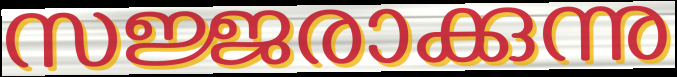
സജ്ജരാക്കുന്നു